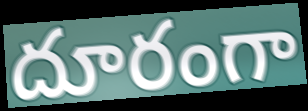
దూరంగా